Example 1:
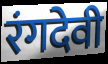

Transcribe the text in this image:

रंगदेवी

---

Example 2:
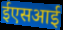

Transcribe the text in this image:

ईएसआई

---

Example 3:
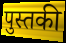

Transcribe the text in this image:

पुस्तकी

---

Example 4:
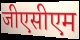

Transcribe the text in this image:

जीएसीएम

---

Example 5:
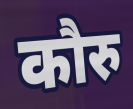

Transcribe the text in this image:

कौरु